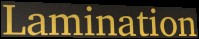
Lamination